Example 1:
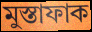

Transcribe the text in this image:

মুস্তাফাক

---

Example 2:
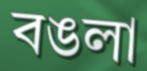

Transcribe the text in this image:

বঙলা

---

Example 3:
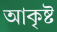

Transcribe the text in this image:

আকৃষ্ট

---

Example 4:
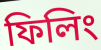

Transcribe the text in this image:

ফিলিং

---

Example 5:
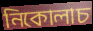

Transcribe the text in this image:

নিকোলাচ